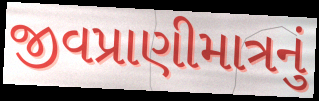
જીવપ્રાણીમાત્રનું